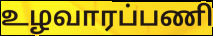
உழவாரப்பணி